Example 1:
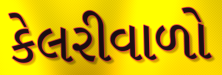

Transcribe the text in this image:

કેલરીવાળો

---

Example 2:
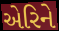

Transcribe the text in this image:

એરિને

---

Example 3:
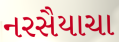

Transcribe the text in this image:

નરસૈયાચા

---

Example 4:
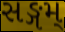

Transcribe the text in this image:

સઙ્ગમ્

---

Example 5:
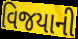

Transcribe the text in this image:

વિજયાની